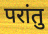
परांतु